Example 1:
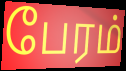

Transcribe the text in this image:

பேரம்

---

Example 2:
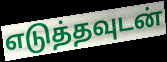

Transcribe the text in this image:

எடுத்தவுடன்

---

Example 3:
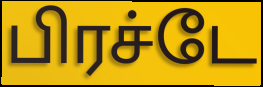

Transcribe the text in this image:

பிரச்டே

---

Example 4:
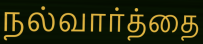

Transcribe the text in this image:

நல்வார்த்தை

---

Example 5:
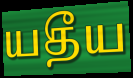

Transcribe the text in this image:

யதீய